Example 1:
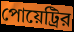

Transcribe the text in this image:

পোয়েট্রির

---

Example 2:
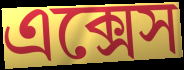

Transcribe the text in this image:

এক্সেস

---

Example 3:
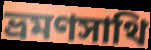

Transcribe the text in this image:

ভ্রমণসাথি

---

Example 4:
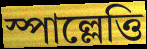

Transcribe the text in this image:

স্পাল্লেত্তি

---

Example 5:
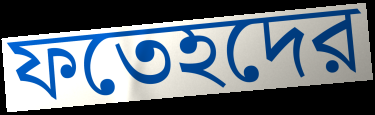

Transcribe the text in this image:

ফতেহদের